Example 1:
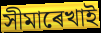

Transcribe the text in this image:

সীমাৰেখাই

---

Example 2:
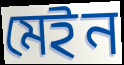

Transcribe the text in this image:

মেইন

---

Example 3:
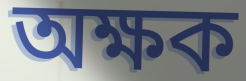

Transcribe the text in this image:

অক্ষক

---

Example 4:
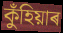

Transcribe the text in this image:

কুঁহিয়াৰ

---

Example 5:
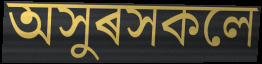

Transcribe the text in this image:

অসুৰসকলে